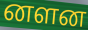
னளன